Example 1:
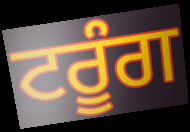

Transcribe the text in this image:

ਟਰੂੰਗ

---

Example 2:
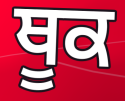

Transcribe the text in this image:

ਥੂਕ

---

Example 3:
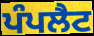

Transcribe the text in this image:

ਪੰਪਲੈਟ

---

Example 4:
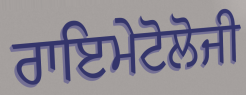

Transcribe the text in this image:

ਰਾਇਮੇਟੋਲੋਜੀ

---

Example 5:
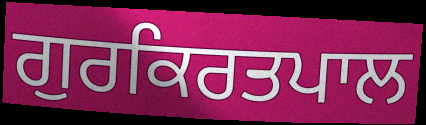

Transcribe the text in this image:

ਗੁਰਕਿਰਤਪਾਲ